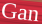
Gan